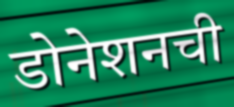
डोनेशनची